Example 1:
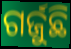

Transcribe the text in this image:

ଗର୍ଜୁଛି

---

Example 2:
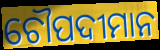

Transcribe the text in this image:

ଚୌପଦୀମାନ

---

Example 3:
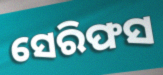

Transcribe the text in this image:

ସେରିଫସ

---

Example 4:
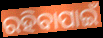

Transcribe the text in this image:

ରହିବାପାଇଁ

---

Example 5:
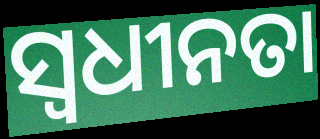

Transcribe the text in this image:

ସ୍ୱଧୀନତା